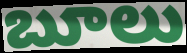
బూలు